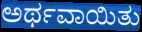
ಅರ್ಥವಾಯಿತು